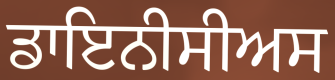
ਡਾਇਨੀਸੀਅਸ